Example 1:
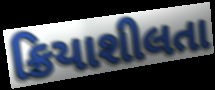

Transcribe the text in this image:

ક્રિયાશીલતા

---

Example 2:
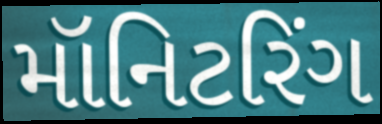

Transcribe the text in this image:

મૉનિટરિંગ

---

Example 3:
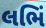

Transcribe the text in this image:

લભિં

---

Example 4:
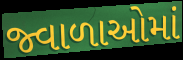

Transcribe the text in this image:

જ્વાળાઓમાં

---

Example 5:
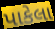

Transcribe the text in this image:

પાકેલા